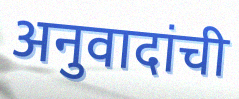
अनुवादांची